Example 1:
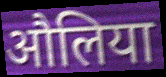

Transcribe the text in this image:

औलिया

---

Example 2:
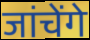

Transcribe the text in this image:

जांचेंगे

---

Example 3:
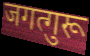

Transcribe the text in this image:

जगत्गुरू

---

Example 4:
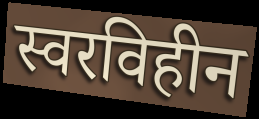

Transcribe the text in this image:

स्वरविहीन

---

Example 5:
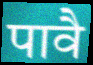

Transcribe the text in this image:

पावै